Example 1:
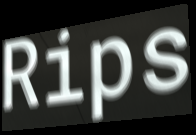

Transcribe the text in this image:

Rips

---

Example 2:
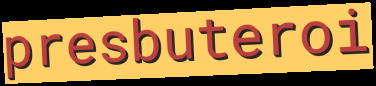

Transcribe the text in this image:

presbuteroi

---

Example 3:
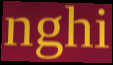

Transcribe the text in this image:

nghi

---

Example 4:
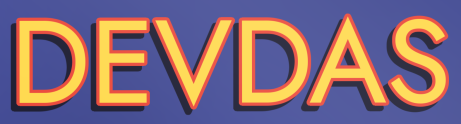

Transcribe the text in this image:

DEVDAS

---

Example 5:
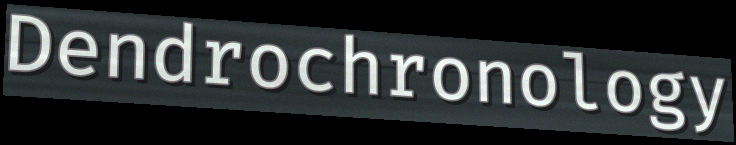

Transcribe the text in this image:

Dendrochronology